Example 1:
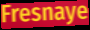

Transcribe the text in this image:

Fresnaye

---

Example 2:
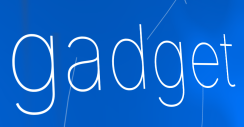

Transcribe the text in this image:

gadget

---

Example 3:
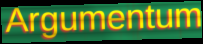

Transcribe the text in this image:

Argumentum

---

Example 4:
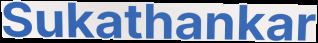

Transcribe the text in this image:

Sukathankar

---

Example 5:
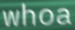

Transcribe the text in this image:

whoa